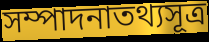
সম্পাদনাতথ্যসূত্র